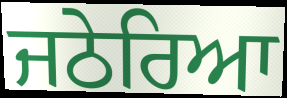
ਜਠੇਰਿਆ